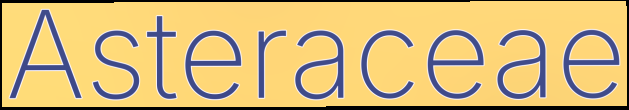
Asteraceae